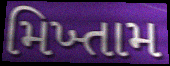
મિખ્તામ